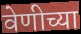
वेणीच्या